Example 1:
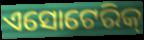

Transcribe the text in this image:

ଏସୋଟେରିକ୍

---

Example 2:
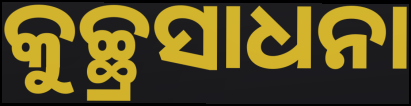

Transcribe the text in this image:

କୁଚ୍ଛ୍ରସାଧନା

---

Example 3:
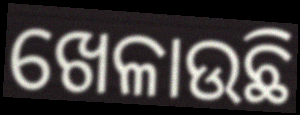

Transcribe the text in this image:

ଖେଳାଉଛି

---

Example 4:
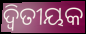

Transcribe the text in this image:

ଦ୍ୱିତୀୟକ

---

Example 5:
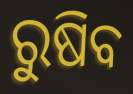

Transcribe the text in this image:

ରୁଷିବ